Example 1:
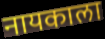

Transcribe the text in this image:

नायकाला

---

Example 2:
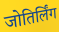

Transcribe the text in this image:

जोतिर्लिंग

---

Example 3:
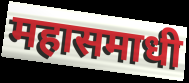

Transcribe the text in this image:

महासमाधी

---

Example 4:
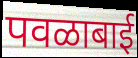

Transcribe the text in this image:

पवळाबाई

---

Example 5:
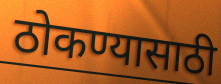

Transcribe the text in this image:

ठोकण्यासाठी